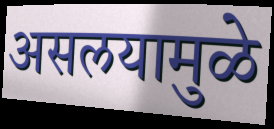
असलयामुळे